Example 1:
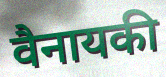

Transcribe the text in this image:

वैनायकी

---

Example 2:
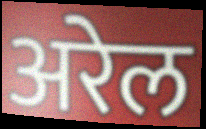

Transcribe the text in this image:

अरेल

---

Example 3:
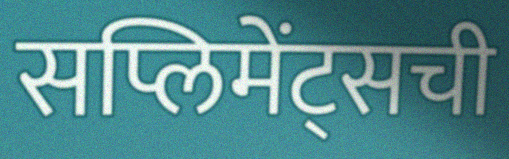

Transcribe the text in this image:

सप्लिमेंट्सची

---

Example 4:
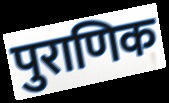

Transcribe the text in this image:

पुराणिक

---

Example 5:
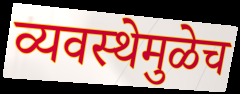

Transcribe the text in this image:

व्यवस्थेमुळेच